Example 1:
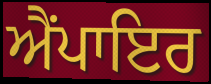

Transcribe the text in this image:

ਐਂਪਾਇਰ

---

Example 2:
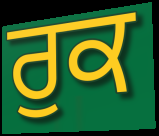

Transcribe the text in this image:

ਰੁਕ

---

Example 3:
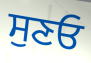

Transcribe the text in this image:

ਸੁਣਓ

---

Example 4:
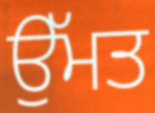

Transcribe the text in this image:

ਉੱਮਤ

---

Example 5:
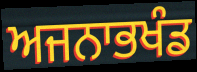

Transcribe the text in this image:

ਅਜਨਾਭਖੰਡ